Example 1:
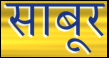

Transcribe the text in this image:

साबूर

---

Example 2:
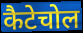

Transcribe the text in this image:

कैटेचोल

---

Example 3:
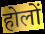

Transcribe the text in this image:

होलों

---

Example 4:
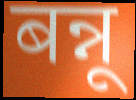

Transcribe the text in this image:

बन्नू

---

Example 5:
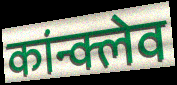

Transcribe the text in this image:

कांन्क्लेव